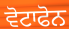
ਵੋਟਾਫੋਨ